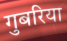
गुबरिया